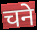
चने